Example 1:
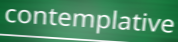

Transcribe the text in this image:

contemplative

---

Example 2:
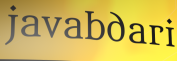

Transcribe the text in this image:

javabdari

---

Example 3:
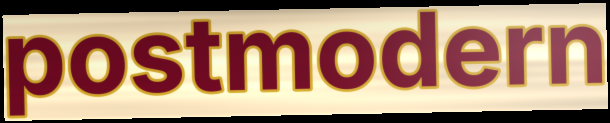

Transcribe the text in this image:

postmodern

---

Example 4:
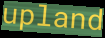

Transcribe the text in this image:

upland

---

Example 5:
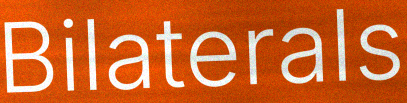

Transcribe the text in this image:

Bilaterals